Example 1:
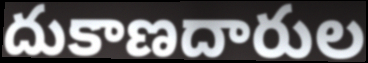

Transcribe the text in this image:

దుకాణదారుల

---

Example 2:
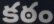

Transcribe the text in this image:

కఠం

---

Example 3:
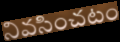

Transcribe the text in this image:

నివసించటం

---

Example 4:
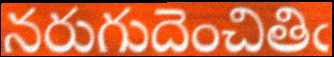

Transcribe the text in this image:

నరుగుదెంచితిఁ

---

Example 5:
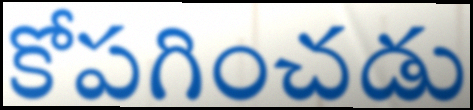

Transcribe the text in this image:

కోపగించడు